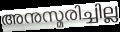
അനുസ്മരിച്ചില്ല